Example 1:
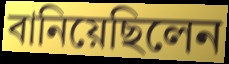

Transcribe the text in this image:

বানিয়েছিলেন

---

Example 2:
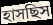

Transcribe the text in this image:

হাসছিস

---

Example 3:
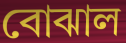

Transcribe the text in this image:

বোঝাল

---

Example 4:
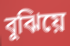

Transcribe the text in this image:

বুঝিয়ে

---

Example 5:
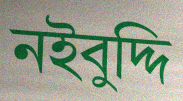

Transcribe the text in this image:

নইবুদ্দি